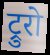
ट्रुरो